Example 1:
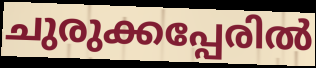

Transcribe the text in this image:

ചുരുക്കപ്പേരിൽ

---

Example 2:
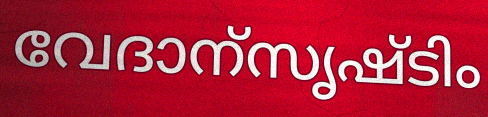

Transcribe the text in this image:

വേദാന്സൃഷ്ടിം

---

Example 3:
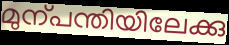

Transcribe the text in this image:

മുന്പന്തിയിലേക്കു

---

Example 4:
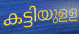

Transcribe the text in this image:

കട്ടിയുളള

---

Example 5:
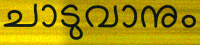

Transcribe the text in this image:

ചാടുവാനും